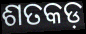
ଶତକଡ଼